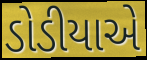
ડોડીયાએ